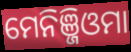
ମେନିଞ୍ଜିଓମା